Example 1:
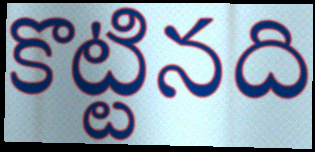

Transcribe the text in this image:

కొట్టినది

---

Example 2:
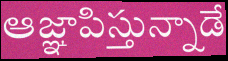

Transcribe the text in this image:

ఆజ్ఞాపిస్తున్నాడే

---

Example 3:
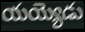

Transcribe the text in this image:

యయ్యెడు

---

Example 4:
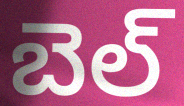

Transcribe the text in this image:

బెల్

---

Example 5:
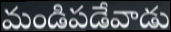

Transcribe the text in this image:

మండిపడేవాడు